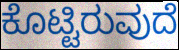
ಕೊಟ್ಟಿರುವುದೆ